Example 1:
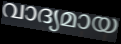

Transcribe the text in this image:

വാദ്യമായ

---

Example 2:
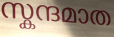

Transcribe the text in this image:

സ്കന്ദമാത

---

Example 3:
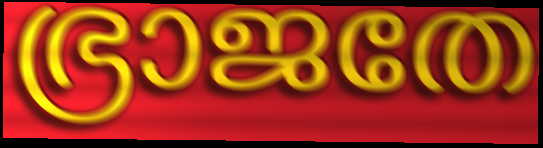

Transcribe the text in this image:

ഭ്രാജതേ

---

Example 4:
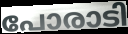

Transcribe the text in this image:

പോരാടി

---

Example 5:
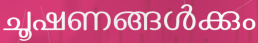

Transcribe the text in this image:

ചൂഷണങ്ങൾക്കും